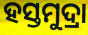
ହସ୍ତମୁଦ୍ରା